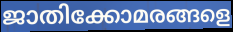
ജാതിക്കോമരങ്ങളെ